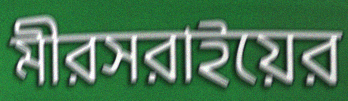
মীরসরাইয়ের